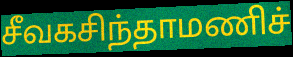
சீவகசிந்தாமணிச்